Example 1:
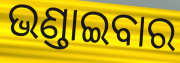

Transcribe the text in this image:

ଭଣ୍ଡାଇବାର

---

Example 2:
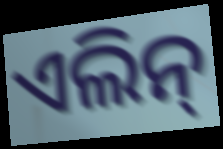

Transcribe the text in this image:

ଏଲିନ୍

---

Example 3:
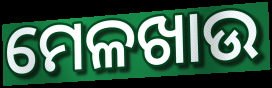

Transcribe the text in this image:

ମେଳଖାଉ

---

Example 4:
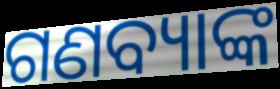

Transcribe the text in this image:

ଗଣବ୍ୟାଙ୍କ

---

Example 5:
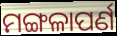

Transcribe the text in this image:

ମଙ୍ଗଳାପର୍ଣ